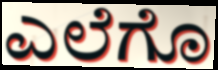
ಎಲೆಗೊ